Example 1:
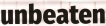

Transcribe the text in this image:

unbeaten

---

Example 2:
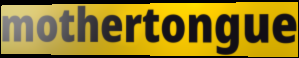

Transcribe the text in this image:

mothertongue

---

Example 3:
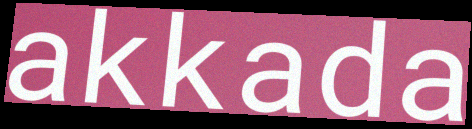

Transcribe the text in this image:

akkada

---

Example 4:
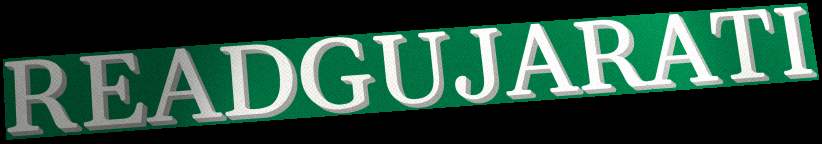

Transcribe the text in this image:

READGUJARATI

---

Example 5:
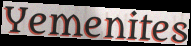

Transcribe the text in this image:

Yemenites